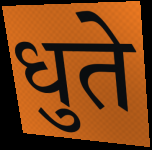
धुते